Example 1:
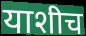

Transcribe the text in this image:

याशीच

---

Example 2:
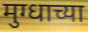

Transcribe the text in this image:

मुग्धाच्या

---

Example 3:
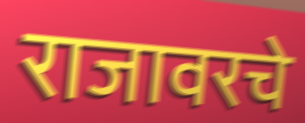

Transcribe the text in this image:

राजावरचे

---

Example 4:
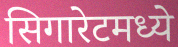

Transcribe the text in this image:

सिगारेटमध्ये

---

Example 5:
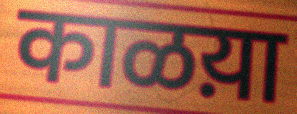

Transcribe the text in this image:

काळय़ा